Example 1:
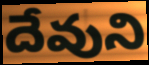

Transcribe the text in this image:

దేవుని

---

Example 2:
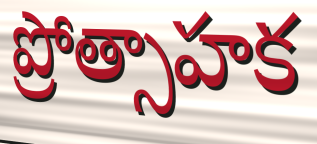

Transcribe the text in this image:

ప్రోత్సాహక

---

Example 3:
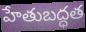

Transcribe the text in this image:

హేతుబద్ధత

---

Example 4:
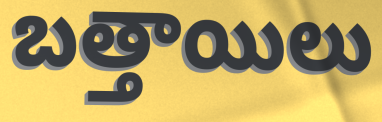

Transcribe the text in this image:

బత్తాయిలు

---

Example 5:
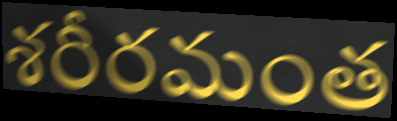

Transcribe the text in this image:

శరీరమంత